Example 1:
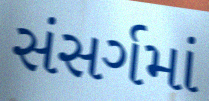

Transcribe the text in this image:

સંસર્ગમાં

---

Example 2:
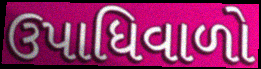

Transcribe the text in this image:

ઉપાધિવાળો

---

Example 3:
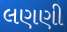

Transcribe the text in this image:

લણણી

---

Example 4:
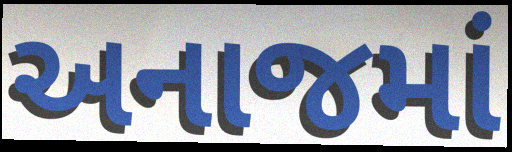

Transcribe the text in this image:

અનાજમાં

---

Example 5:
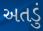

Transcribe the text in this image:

અતડું